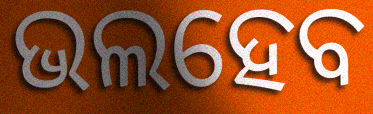
ଭଲହେବ